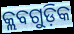
କ୍ଲବଗୁଡ଼ିକ